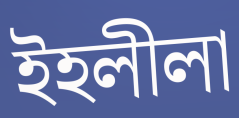
ইহলীলা